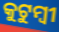
କୁଟୁମ୍ବୀ